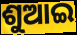
ଶୁଆଇ